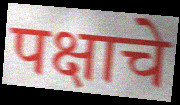
पक्षाचे